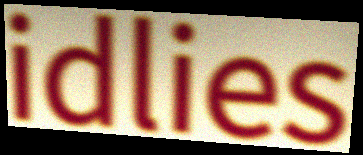
idlies